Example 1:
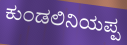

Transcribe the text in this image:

ಕುಂಡಲಿನಿಯಪ್ಪ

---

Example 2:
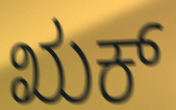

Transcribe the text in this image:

ಋಕ್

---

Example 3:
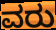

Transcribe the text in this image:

ವರು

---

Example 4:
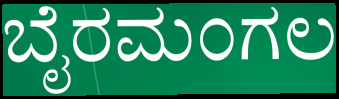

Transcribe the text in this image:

ಬೈರಮಂಗಲ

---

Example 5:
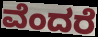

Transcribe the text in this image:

ವೆಂದರೆ